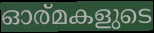
ഓര്മകളുടെ